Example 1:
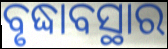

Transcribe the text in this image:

ବୃଦ୍ଧାବସ୍ଥାର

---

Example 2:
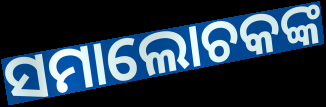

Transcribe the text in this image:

ସମାଲୋଚକଙ୍କ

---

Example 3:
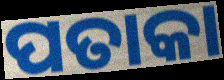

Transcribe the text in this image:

ପତାକା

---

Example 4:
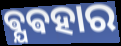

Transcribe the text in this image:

ଵ୍ଯଵହାର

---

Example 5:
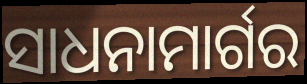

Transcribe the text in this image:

ସାଧନାମାର୍ଗର